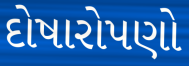
દોષારોપણો